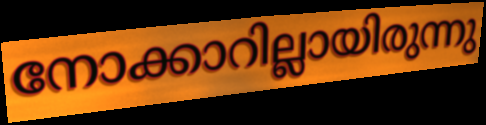
നോക്കാറില്ലായിരുന്നു